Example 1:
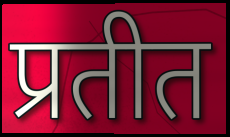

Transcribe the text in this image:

प्रतीत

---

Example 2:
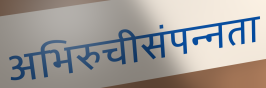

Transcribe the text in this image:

अभिरुचीसंपन्नता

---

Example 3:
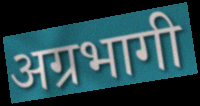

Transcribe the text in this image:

अग्रभागी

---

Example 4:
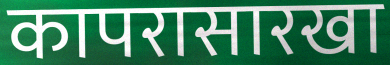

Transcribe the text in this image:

कापरासारखा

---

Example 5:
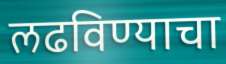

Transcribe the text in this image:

लढविण्याचा